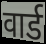
वार्ड